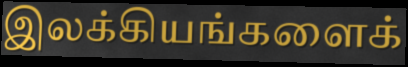
இலக்கியங்களைக்